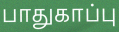
பாதுகாப்பு